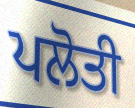
ਪਲੋਤੀ